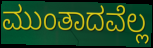
ಮುಂತಾದವೆಲ್ಲ